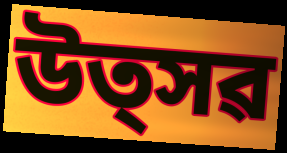
উত্সৱ